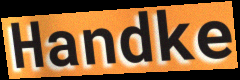
Handke